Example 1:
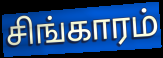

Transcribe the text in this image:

சிங்காரம்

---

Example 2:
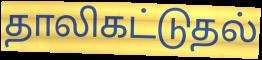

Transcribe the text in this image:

தாலிகட்டுதல்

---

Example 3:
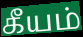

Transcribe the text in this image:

கீயம்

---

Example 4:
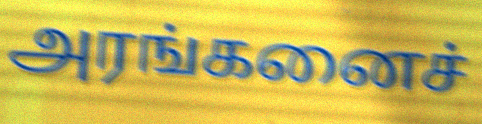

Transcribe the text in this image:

அரங்கனைச்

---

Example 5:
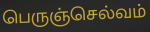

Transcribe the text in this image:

பெருஞ்செல்வம்